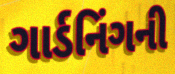
ગાર્ડનિંગની